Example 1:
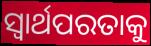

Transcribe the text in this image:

ସ୍ଵାର୍ଥପରତାକୁ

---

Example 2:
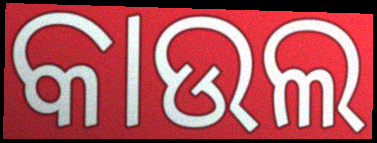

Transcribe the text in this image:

କାଉଲ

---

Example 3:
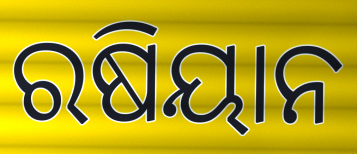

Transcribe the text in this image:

ରଷିୟାନ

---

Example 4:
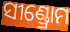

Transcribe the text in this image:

ସୀଣ୍ଡ୍ରୋମ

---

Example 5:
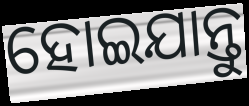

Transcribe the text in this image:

ହୋଇଯାନ୍ତୁ